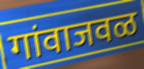
गांवाजवळ